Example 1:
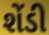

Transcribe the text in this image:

શેંડી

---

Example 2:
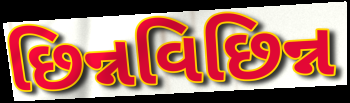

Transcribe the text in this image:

છિન્નવિછિન્ન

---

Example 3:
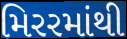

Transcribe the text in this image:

મિરરમાંથી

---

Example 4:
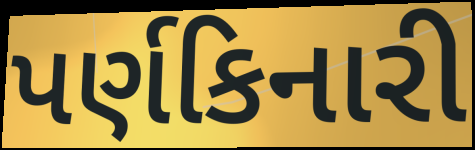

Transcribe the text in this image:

પર્ણકિનારી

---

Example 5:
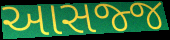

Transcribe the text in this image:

આસજ્જ